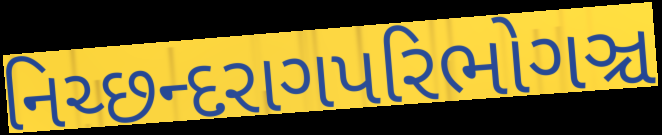
નિચ્છન્દરાગપરિભોગઞ્ચ